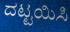
ದಟ್ಟಯಿಸಿ